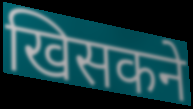
खिसकने